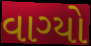
વાગ્યો